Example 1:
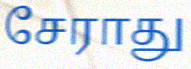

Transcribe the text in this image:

சேராது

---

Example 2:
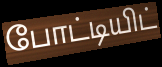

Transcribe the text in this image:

போட்டியிட்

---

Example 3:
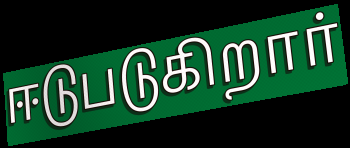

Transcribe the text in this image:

ஈடுபடுகிறார்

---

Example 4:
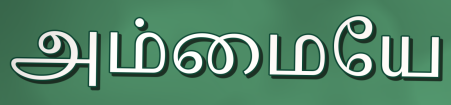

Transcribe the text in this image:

அம்மையே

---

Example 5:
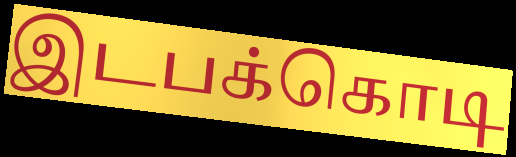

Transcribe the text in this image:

இடபக்கொடி